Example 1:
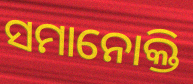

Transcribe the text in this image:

ସମାନୋକ୍ତି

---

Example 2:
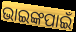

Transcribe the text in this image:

ଭାଇଙ୍କପାଇଁ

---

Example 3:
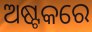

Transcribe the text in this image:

ଅଷ୍ଟକରେ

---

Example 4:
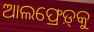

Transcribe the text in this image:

ଆଲଫ୍ରେଡ଼୍‍କୁ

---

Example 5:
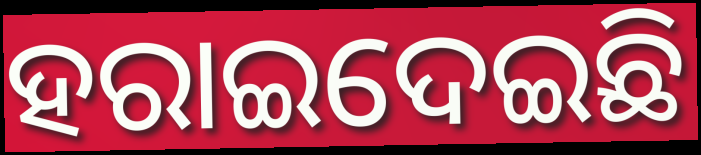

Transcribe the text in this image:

ହରାଇଦେଇଛି